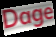
Dage